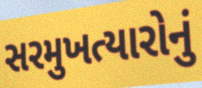
સરમુખત્યારોનું